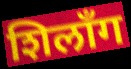
शिलाँग